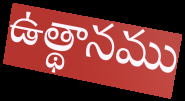
ఉత్థానము